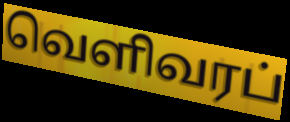
வெளிவரப்